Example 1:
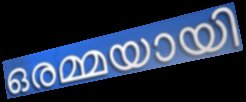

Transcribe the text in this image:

ഒരമ്മയായി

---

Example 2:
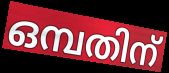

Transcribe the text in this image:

ഒമ്പതിന്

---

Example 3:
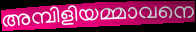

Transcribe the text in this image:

അമ്പിളിയമ്മാവനെ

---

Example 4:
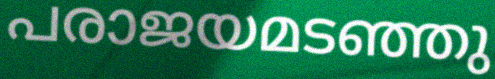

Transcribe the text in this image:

പരാജയമടഞ്ഞു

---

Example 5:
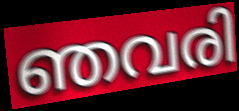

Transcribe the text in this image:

ഞവരി